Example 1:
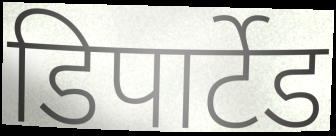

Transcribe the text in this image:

डिपार्टेड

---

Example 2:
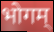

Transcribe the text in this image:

भोगम्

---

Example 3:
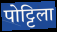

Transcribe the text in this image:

पोट्टिला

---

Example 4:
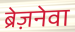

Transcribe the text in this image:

ब्रेज़नेवा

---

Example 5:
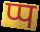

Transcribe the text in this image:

प्प